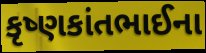
કૃષ્ણકાંતભાઈના